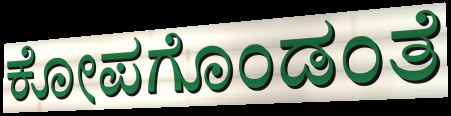
ಕೋಪಗೊಂಡಂತೆ